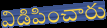
విడిపించారు